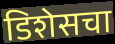
डिशेसचा